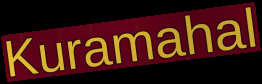
Kuramahal